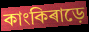
কাংকিৰাড়ে